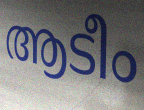
ആടീം